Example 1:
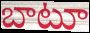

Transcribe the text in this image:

బాటూ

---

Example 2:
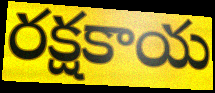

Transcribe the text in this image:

రక్షకాయ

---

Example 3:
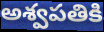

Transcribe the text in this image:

అశ్వపతికి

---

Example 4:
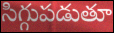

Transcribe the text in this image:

సిగ్గుపడుతూ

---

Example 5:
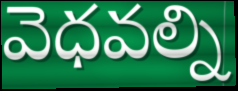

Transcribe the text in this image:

వెధవల్ని